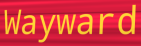
Wayward